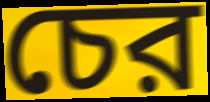
চের